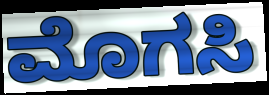
ಮೊಗಸಿ